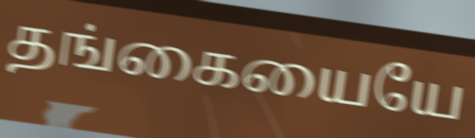
தங்கையையே